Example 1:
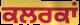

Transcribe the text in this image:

ਕਲਰਕਾਂ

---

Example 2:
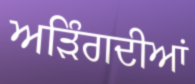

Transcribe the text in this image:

ਅੜਿੰਗਦੀਆਂ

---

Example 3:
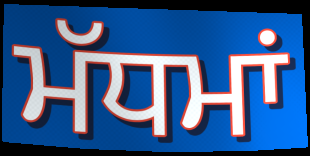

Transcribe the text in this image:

ਮੱਧਮਾਂ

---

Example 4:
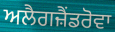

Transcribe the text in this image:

ਅਲੈਗਜ਼ੈਂਡਰੋਵਾ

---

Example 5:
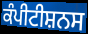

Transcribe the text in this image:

ਕੰਪੀਟੀਸ਼ਨਸ